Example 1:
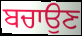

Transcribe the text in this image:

ਬਚਾਉਣ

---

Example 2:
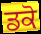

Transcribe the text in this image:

ਡਕੋ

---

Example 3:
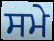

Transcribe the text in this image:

ਸਮੇ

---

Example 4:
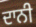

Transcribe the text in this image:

ਦਾਨੀ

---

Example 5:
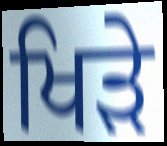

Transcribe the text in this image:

ਖਿੜੇ